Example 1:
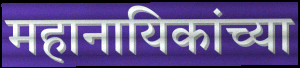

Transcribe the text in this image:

महानायिकांच्या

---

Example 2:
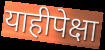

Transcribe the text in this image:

याहीपेक्षा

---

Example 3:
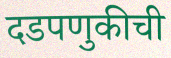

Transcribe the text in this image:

दडपणुकीची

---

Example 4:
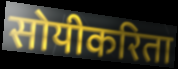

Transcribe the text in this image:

सोयीकरिता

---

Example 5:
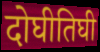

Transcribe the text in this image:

दोघीतिघी